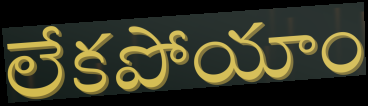
లేకపోయాం